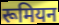
रूमियन